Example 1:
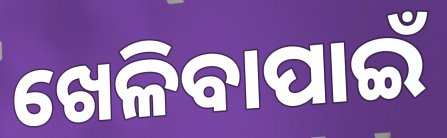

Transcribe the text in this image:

ଖେଳିବାପାଇଁ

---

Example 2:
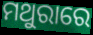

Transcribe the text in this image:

ମଥୁରାରେ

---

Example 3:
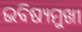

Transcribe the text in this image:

ଭବିଷ୍ୟମୁଖୀ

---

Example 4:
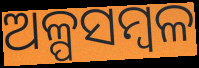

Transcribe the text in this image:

ଅଳ୍ପସମ୍ବଳ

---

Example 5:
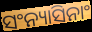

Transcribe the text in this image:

ସଂନ୍ୟାସିନାଂ